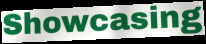
Showcasing